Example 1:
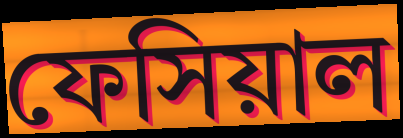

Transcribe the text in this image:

ফেসিয়াল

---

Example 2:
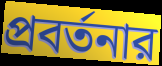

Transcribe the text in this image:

প্রবর্তনার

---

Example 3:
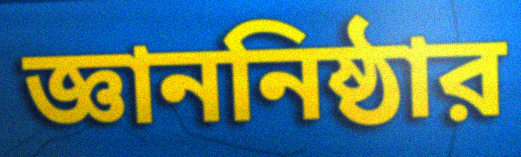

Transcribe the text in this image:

জ্ঞাননিষ্ঠার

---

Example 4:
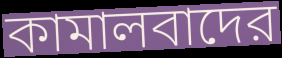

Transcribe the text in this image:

কামালবাদের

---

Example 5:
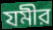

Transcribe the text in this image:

যমীর